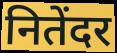
नितेंदर